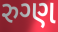
રુગ્ણ